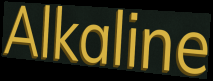
Alkaline